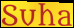
Suha